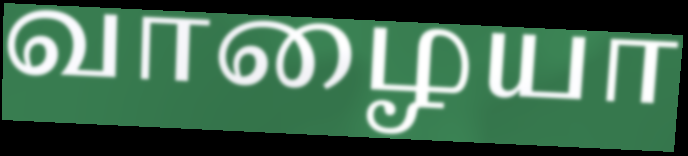
வாழையா